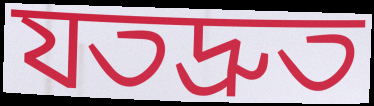
যতদ্রুত